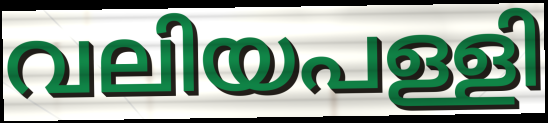
വലിയപള്ളി